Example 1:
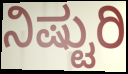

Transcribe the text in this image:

ನಿಷ್ಟುರಿ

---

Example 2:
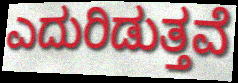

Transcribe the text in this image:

ಎದುರಿಡುತ್ತವೆ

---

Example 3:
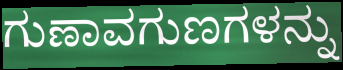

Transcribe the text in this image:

ಗುಣಾವಗುಣಗಳನ್ನು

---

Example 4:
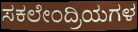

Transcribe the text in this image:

ಸಕಲೇಂದ್ರಿಯಗಳ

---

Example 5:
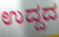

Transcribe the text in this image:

ಉದ್ದದ